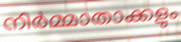
നിർമ്മാതാക്കളും